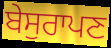
ਬੇਸੁਰਾਪਣ